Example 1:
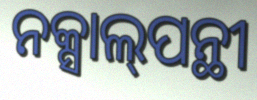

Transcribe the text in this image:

ନକ୍ସାଲ୍‌ପନ୍ଥୀ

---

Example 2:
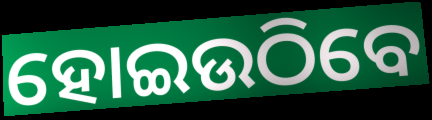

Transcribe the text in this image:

ହୋଇଉଠିବେ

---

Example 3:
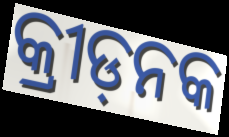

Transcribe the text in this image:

କ୍ରୀଡ଼ନକ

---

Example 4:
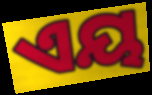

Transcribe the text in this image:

ଏୟ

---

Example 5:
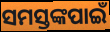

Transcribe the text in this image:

ସମସ୍ତଙ୍କପାଇଁ